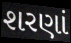
શરણાં